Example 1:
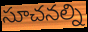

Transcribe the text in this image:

సూచనల్ని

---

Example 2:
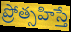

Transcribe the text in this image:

ప్రోత్సహిస్తే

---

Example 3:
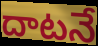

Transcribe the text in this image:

దాటనే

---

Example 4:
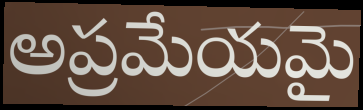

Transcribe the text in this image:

అప్రమేయమై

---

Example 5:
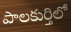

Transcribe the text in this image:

పాలకుర్తిలో